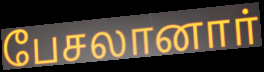
பேசலானார்